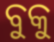
ବୁକୁ